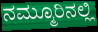
ನಮ್ಮೂರಿನಲ್ಲಿ